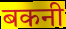
बकनी